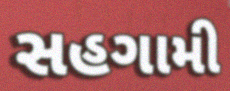
સહગામી